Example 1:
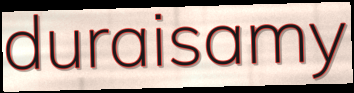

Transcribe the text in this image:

duraisamy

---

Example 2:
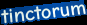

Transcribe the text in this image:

tinctorum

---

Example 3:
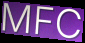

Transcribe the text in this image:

MFC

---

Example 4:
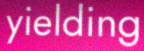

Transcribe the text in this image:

yielding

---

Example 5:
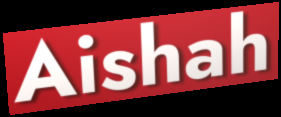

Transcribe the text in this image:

Aishah